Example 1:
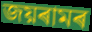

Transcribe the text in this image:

জয়ৰামৰ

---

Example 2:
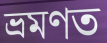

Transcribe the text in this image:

ভ্ৰমণত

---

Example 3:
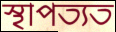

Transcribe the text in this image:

স্থাপত্যত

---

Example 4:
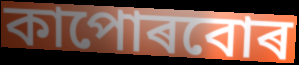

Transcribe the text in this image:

কাপোৰবোৰ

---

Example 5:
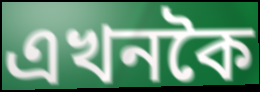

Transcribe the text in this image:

এখনকৈ